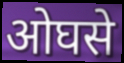
ओघसे